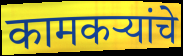
कामकऱ्यांचे